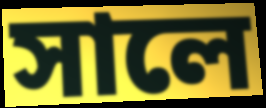
সালে